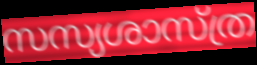
സസ്യശാസ്ത്ര